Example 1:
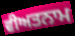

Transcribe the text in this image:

ਵੀਅਤਨਾਮ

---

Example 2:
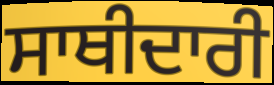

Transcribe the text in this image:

ਸਾਥੀਦਾਰੀ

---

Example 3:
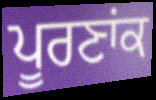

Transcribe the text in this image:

ਪੂਰਣਾਂਕ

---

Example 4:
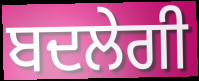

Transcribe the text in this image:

ਬਦਲੇਗੀ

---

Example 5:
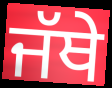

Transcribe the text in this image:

ਜੱਥੇ